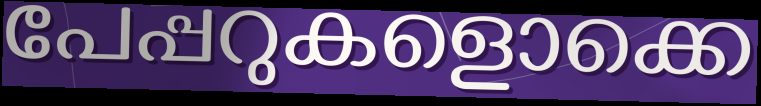
പേപ്പറുകളൊക്കെ